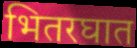
भितरघात